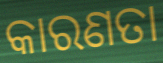
କାରଣତା